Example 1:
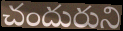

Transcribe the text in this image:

చందురుని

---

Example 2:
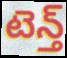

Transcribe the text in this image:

టెన్త్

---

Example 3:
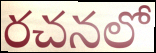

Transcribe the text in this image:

రచనలో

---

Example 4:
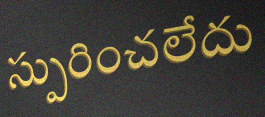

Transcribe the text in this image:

స్పురించలేదు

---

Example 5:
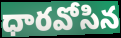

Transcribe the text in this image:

ధారవోసిన